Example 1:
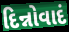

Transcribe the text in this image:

દિન્નોવાદં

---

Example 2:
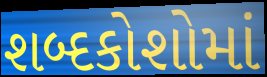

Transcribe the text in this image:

શબ્દકોશોમાં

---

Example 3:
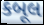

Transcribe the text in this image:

કબૂલ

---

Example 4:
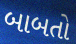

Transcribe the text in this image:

બાબતો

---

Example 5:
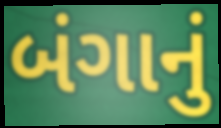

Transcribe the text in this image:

બંગાનું